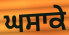
ਘਸਾਕੇ